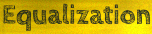
Equalization